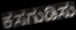
ಕಸಗುಡಿಸು